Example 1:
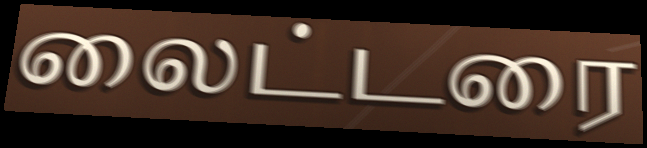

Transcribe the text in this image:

லைட்டரை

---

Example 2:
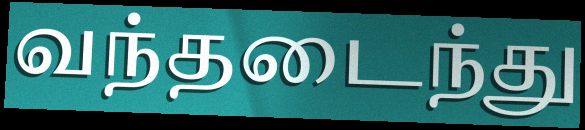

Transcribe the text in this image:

வந்தடைந்து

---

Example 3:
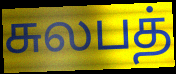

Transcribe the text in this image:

சுலபத்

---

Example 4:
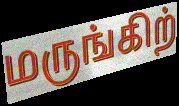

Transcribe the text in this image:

மருங்கிற்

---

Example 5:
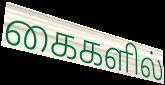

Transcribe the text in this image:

கைகளில்